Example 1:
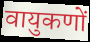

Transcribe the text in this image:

वायुकणों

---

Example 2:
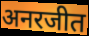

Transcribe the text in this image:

अनरजीत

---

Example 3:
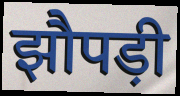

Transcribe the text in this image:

झौपड़ी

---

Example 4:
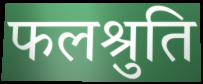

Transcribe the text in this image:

फलश्रुति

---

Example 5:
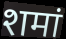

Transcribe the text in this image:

शमां